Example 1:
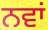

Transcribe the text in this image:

ਨਵਾਂ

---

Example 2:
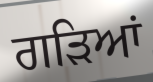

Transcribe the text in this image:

ਗੜਿਆਂ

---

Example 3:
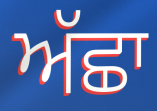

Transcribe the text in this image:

ਅੱਛਾ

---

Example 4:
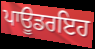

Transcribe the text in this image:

ਪਾਊਡਰਇਹ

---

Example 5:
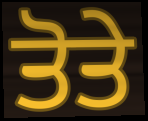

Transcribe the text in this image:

ਤੋਤੇ